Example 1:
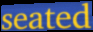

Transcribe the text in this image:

seated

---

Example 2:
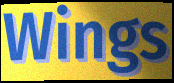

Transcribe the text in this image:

Wings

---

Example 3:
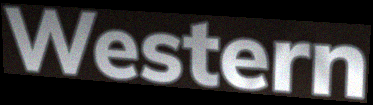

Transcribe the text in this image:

Western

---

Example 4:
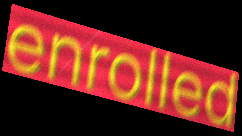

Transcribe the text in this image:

enrolled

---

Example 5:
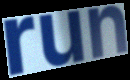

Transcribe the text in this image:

run